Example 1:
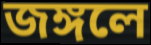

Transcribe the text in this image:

জঙ্গলে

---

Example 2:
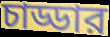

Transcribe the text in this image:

চাড্ডার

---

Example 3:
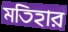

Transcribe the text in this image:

মতিহার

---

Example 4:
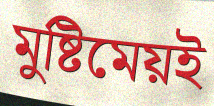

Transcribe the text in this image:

মুষ্টিমেয়ই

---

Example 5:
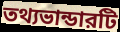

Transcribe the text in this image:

তথ্যভান্ডারটি